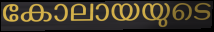
കോലായയുടെ